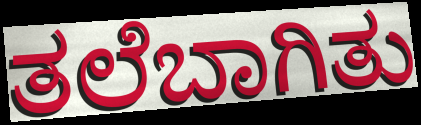
ತಲೆಬಾಗಿತು